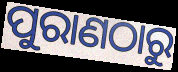
ପୁରାଣଠାରୁ